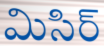
మిసిర్